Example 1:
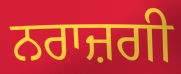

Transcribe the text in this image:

ਨਰਾਜ਼ਗੀ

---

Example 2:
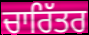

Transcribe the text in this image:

ਚਾਰਿੱਤਰ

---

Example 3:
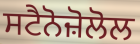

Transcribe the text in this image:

ਸਟੈਨੋਜ਼ੋਲੋਲ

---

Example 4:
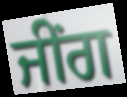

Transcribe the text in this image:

ਜੀਂਗ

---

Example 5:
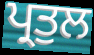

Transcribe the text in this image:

ਪ੍ਰਤੁਲ